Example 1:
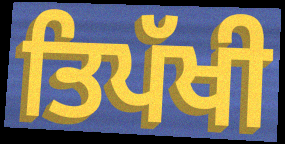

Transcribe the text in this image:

ਤਿਪੱਖੀ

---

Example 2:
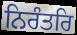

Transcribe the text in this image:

ਨਿਰੰਤਰਿ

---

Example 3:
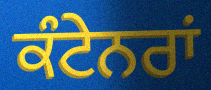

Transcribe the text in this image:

ਕੰਟੇਨਰਾਂ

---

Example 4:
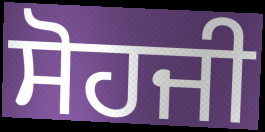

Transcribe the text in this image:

ਸੋਹਜੀ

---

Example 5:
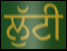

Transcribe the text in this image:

ਲੁੱਟੀ